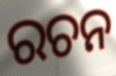
ରଚନ